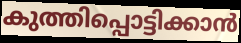
കുത്തിപ്പൊട്ടിക്കാൻ